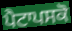
ਪੈਟਾਪਸਕੋ